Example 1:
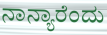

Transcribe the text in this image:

ನಾನ್ಯಾರೆಂದು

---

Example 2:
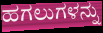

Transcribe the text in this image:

ಹಗಲುಗಳನ್ನು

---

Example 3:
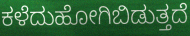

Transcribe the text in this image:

ಕಳೆದುಹೋಗಿಬಿಡುತ್ತದೆ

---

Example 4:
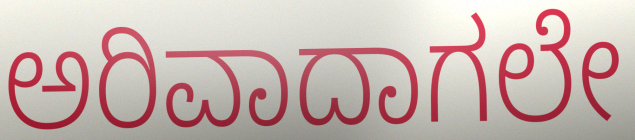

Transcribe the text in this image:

ಅರಿವಾದಾಗಲೇ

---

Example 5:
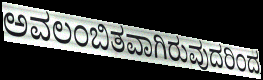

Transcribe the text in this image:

ಅವಲಂಬಿತವಾಗಿರುವುದರಿಂದ